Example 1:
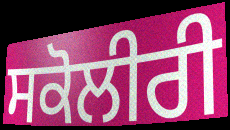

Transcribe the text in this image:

ਸਕੋਲੀਰੀ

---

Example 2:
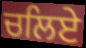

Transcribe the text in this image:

ਚਲਿਏ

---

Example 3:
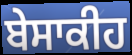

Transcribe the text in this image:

ਬੇਸਾਕੀਹ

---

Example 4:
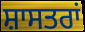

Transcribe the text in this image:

ਸ਼ਾਸਤਰਾਂ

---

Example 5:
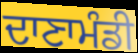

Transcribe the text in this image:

ਦਾਣਾਮੰਡੀ